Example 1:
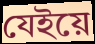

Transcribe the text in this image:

যেইয়ে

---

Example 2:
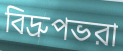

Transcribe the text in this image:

বিদ্রুপভরা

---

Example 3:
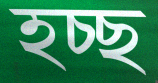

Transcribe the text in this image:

হচ্ছ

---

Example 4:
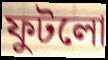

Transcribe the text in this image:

ফুটলো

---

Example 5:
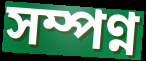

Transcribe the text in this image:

সম্পণ্ন